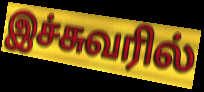
இச்சுவரில்